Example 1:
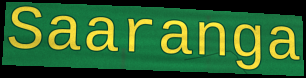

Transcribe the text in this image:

Saaranga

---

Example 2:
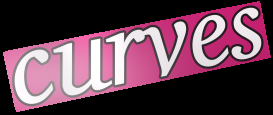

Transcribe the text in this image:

curves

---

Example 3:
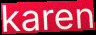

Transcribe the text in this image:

karen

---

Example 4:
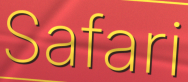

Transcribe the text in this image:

Safari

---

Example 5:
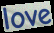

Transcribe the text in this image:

love